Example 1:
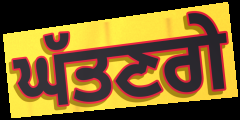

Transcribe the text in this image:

ਘੱਤਣਗੇ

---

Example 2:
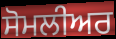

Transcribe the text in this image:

ਸੋਮਲੀਅਰ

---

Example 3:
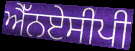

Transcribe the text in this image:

ਐੱਨਏਸੀਪੀ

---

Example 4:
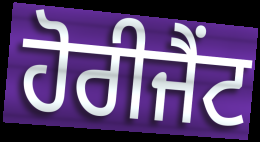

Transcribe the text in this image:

ਹੋਰੀਜੈਂਟ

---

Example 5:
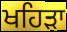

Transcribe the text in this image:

ਖਹਿਡ਼ਾ